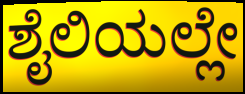
ಶೈಲಿಯಲ್ಲೇ